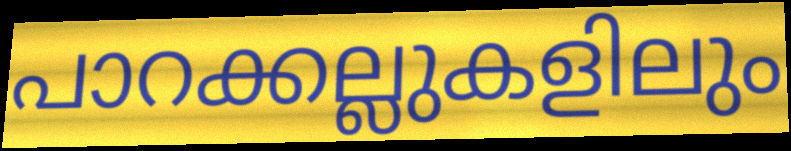
പാറക്കല്ലുകളിലും